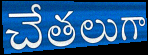
చేతలుగా